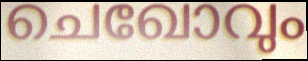
ചെഖോവും